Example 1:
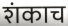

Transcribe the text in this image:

शंकाच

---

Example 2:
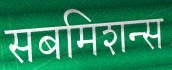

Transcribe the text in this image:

सबमिशन्स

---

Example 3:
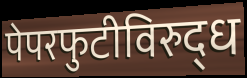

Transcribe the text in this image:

पेपरफुटीविरुद्ध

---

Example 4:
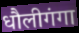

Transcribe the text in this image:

धौलीगंगा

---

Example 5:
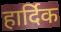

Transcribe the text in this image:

हार्दिक